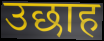
उछाह